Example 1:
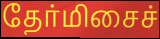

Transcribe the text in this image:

தேர்மிசைச்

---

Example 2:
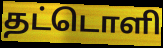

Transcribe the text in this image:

தட்டொளி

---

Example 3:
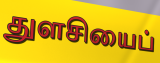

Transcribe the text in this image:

துளசியைப்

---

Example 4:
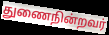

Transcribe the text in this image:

துணைநின்றவர்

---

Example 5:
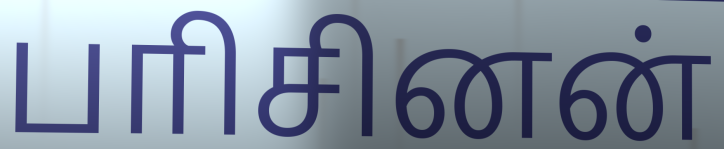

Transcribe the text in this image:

பரிசினன்